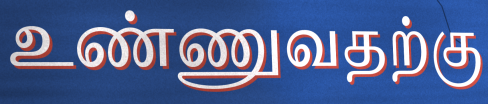
உண்ணுவதற்கு